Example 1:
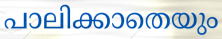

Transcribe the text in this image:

പാലിക്കാതെയും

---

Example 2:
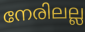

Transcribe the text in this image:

നേരിലല്ല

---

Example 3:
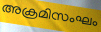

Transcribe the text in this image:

അക്രമിസംഘം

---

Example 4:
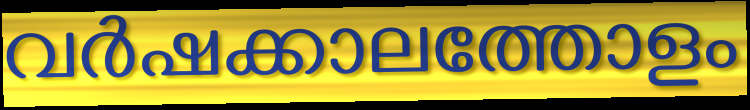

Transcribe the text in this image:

വർഷക്കാലത്തോളം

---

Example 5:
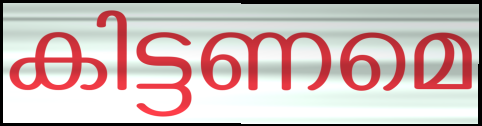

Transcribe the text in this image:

കിട്ടണമെ